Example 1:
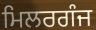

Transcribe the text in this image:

ਮਿਲਰਗੰਜ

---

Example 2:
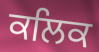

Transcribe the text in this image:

ਕਲਿਕ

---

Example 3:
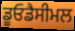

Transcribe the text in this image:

ਡੂਓਡੈਸੀਮਲ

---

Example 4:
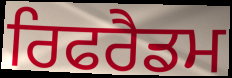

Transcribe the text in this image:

ਰਿਫਰੈਡਮ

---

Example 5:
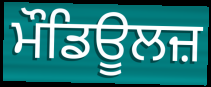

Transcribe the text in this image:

ਮੌਡਿਊਲਜ਼